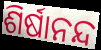
ଶିର୍ଷାନନ୍ଦ